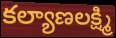
కల్యాణలక్ష్మి